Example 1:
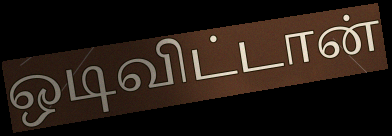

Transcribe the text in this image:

ஒடிவிட்டான்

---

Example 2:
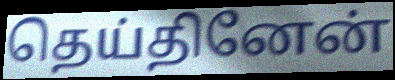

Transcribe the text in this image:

தெய்தினேன்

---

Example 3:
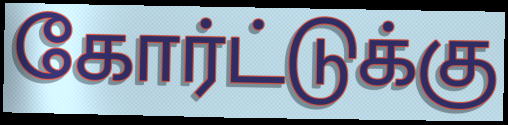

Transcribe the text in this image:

கோர்ட்டுக்கு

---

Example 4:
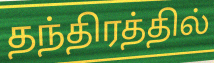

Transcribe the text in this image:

தந்திரத்தில்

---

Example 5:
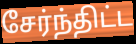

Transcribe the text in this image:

சேர்ந்திட்ட